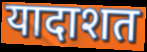
यादाशत